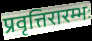
प्रवृत्तिरारम्भः